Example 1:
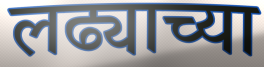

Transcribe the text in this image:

लढ्याच्या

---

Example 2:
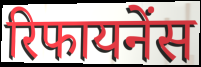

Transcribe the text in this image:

रिफायनेंस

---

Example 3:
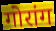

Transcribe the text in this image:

गोरांग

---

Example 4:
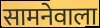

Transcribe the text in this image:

सामनेवाला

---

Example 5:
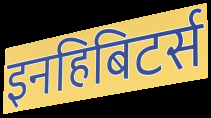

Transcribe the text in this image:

इनहिबिटर्स